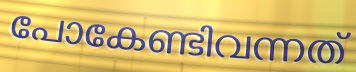
പോകേണ്ടിവന്നത്